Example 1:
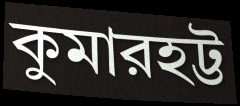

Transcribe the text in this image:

কুমারহট্ট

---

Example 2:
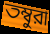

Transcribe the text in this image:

তম্বুরা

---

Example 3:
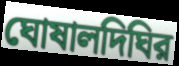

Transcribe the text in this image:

ঘোষালদিঘির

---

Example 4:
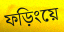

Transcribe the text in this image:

ফড়িংয়ে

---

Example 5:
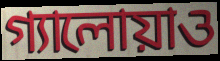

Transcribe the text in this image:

গ্যালোয়াও